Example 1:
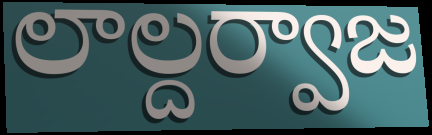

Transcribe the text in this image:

లాల్దర్వాజ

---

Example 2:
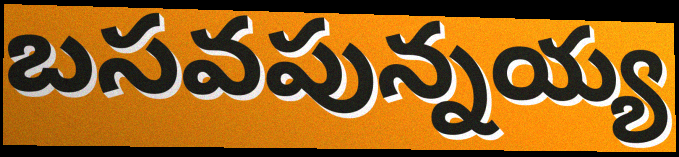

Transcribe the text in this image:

బసవపున్నయ్య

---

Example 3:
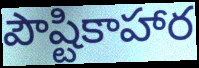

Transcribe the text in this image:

పౌష్టికాహార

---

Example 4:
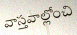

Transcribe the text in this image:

వాస్తవాల్లోంచి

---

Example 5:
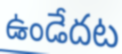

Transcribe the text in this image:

ఉండేదట